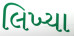
લિખ્યા